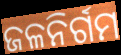
ଜଳନିର୍ଗମ